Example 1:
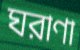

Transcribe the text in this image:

ঘরাণা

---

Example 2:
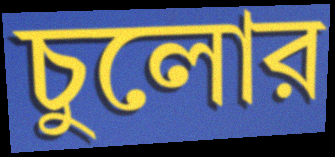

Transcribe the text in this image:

চুলোর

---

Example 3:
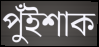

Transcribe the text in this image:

পুঁইশাক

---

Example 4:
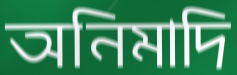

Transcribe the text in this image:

অনিমাদি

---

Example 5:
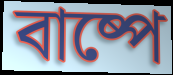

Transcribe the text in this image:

বাষ্পে